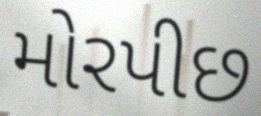
મોરપીછ